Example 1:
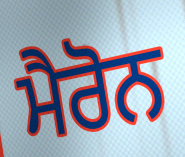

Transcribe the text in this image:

ਮੈਰੋਨ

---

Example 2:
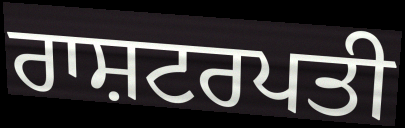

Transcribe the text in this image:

ਰਾਸ਼ਟਰਪਤੀ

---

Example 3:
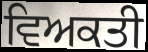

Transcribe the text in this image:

ਵਿਅਕਤੀ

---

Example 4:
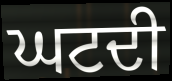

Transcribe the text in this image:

ਘਟਦੀ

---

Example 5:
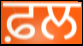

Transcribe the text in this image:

ਫ਼ਲ